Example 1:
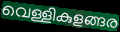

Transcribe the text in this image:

വെള്ളികുളങ്ങര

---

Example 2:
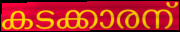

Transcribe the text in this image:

കടക്കാരന്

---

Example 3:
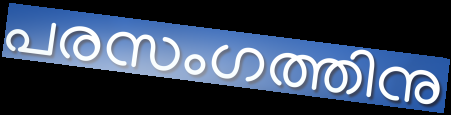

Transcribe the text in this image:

പരസംഗത്തിനു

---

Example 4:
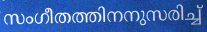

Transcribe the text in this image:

സംഗീതത്തിനനുസരിച്ച്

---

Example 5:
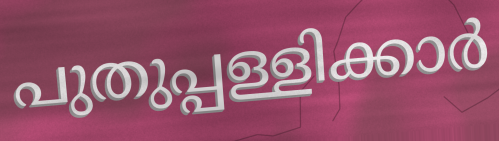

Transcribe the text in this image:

പുതുപ്പള്ളിക്കാർ